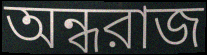
অন্ধরাজ